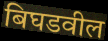
बिघडवील